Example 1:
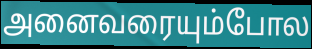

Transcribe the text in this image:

அனைவரையும்போல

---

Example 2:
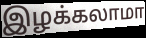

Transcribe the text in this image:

இழக்கலாமா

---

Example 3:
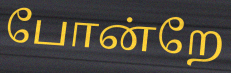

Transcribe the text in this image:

போன்றே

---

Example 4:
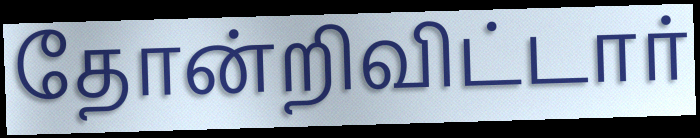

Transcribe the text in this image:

தோன்றிவிட்டார்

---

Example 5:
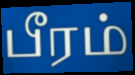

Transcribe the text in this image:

பீரம்